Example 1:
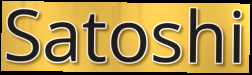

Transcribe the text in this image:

Satoshi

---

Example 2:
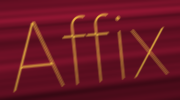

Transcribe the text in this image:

Affix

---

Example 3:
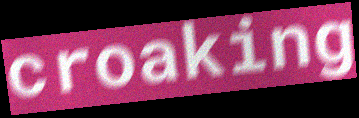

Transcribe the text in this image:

croaking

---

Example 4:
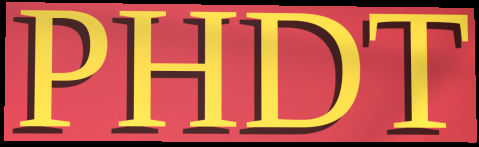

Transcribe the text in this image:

PHDT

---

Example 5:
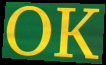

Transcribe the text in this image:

OK